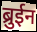
ब्रुईन